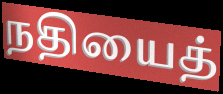
நதியைத்